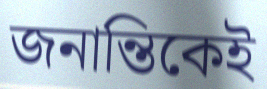
জনান্তিকেই